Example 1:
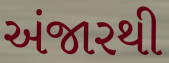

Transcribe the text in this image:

અંજારથી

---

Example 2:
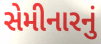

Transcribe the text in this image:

સેમીનારનું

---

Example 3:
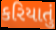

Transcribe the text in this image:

કરિયાતું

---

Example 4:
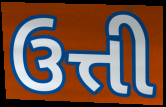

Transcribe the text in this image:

ઉત્તી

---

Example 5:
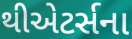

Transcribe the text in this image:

થીએટર્સના